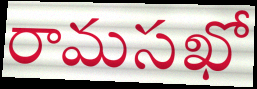
రామసఖో